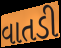
વાતડી